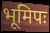
भूमिपः